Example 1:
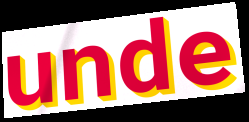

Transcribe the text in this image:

unde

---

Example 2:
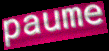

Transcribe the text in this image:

paume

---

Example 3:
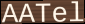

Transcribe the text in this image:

AATel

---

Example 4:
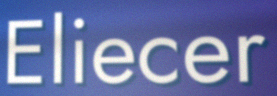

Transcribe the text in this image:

Eliecer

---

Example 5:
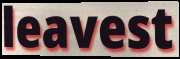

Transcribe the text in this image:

leavest